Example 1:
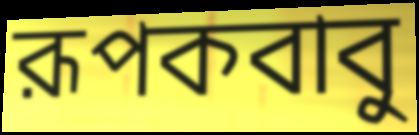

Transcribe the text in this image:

রূপকবাবু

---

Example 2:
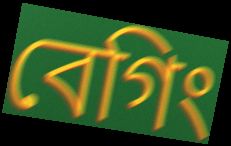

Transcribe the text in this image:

বেগিং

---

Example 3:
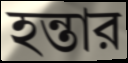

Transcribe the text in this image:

হন্তার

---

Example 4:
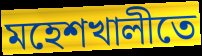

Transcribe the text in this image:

মহেশখালীতে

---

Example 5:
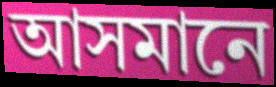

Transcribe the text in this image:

আসমানে